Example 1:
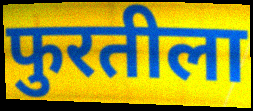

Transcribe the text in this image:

फुरतीला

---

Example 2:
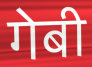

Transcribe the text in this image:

गेबी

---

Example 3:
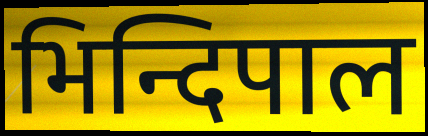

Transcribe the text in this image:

भिन्दिपाल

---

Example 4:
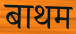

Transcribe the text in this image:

बाथम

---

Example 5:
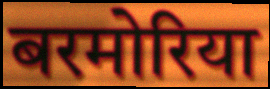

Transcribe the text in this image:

बरमोरिया